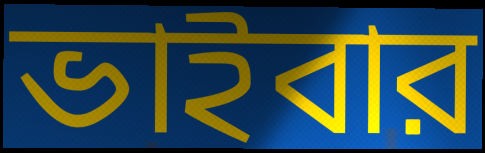
ভাইবার